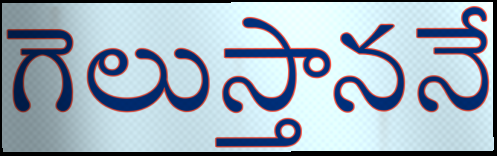
గెలుస్తాననే